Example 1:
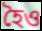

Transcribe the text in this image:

হৈও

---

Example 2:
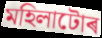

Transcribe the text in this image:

মহিলাটোৰ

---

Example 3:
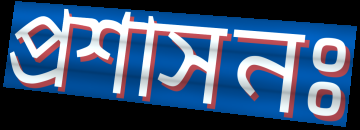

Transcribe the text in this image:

প্ৰশাসনঃ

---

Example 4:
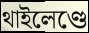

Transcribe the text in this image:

থাইলেণ্ডে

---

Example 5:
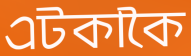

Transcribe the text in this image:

এটকাকৈ